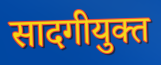
सादगीयुक्त